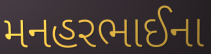
મનહરભાઈના